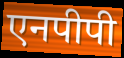
एनपीपी